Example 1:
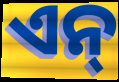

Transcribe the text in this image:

ଏନ୍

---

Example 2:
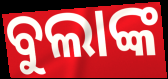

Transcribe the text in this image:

ବୁଲାଙ୍କ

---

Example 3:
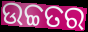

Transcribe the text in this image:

ଉଚ୍ଚତର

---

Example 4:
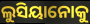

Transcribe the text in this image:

ଲୁସିୟାନୋକୁ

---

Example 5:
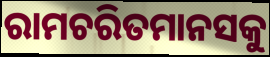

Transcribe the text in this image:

ରାମଚରିତମାନସକୁ